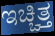
ಇಚ್ಚಿತ್ತ